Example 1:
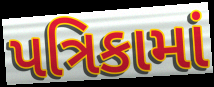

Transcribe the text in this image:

પત્રિકામાં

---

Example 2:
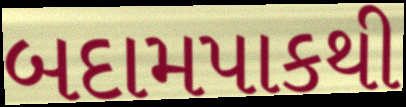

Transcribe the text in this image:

બદામપાકથી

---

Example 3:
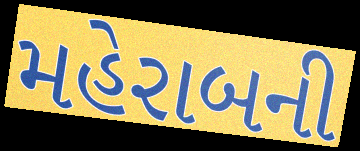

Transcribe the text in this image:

મહેરાબની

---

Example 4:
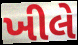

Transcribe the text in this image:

ખીલે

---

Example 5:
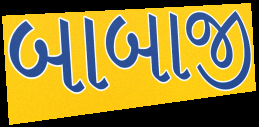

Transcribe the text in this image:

બાબાજી